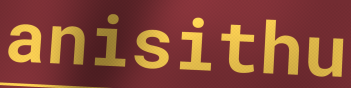
anisithu